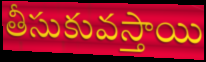
తీసుకువస్తాయి